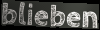
blieben